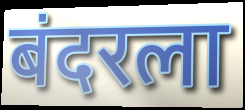
बंदरला